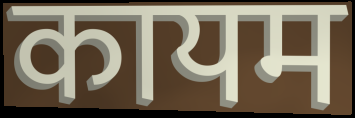
कायम